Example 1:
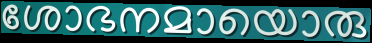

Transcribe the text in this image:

ശോഭനമായൊരു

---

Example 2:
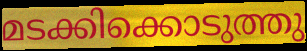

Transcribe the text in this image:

മടക്കിക്കൊടുത്തു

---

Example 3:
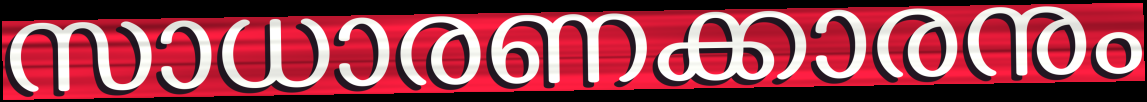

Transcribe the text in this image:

സാധാരണക്കാരനും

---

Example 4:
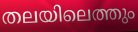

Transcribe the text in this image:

തലയിലെത്തും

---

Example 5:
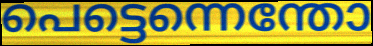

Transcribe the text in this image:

പെട്ടെന്നെന്തോ